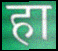
हा